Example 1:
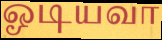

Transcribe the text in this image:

ஓடியவா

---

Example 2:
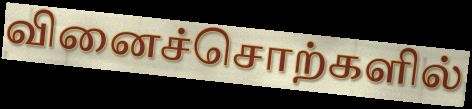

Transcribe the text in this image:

வினைச்சொற்களில்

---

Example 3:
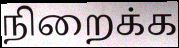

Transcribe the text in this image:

நிறைக்க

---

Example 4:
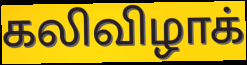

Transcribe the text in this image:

கலிவிழாக்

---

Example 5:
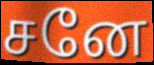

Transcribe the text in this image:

சனே